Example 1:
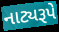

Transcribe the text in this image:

નાટ્યરૂપે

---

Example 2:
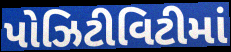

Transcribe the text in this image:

પોઝિટીવિટીમાં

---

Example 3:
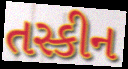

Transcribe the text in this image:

તસ્કીન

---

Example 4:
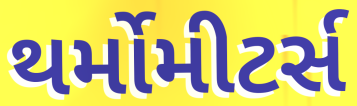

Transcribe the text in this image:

થર્મોમીટર્સ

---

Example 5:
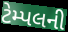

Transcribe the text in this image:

ટેમ્પલની